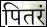
पितरं